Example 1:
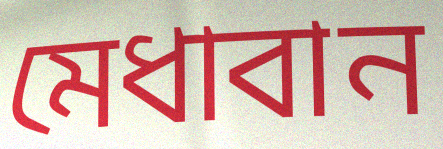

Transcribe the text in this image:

মেধাবান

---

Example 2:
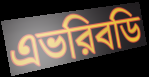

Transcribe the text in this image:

এভরিবডি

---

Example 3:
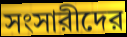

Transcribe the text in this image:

সংসারীদের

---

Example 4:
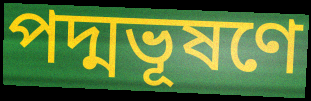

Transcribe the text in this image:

পদ্মভূষণে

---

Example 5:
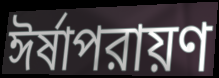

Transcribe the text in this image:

ঈর্ষাপরায়ণ